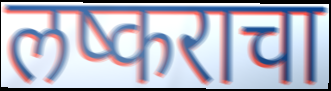
लष्कराचा